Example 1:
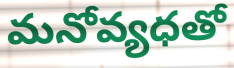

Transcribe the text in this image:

మనోవ్యధతో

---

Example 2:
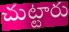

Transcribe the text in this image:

చుట్టారు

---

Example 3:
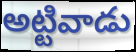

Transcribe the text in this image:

అట్టివాడు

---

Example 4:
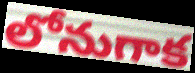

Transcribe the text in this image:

లోనుగాక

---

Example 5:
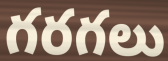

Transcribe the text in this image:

గరగలు